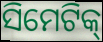
ସିମେଟିକ୍